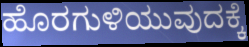
ಹೊರಗುಳಿಯುವುದಕ್ಕೆ